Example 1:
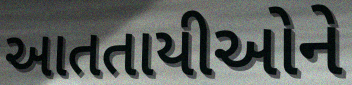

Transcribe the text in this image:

આતતાયીઓને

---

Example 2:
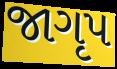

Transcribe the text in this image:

જાગૃપ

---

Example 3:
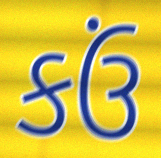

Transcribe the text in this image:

કઉં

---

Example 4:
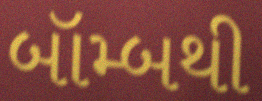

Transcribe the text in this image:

બૉમ્બથી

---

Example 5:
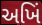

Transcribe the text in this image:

અખિં